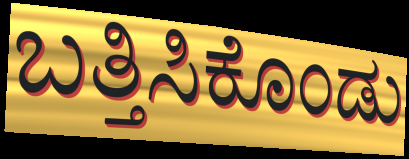
ಬತ್ತಿಸಿಕೊಂಡು